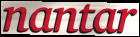
nantar